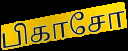
பிகாசோ